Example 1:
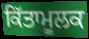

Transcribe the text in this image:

ਕਿੱਤਾਮੂਲਕ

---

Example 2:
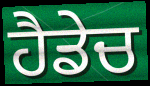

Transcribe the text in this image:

ਹੈਡੇਚ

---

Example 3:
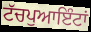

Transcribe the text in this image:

ਟੱਚਪੁਆਇੰਟਾਂ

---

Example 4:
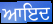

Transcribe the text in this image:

ਆਇਦ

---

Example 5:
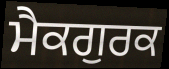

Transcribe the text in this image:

ਮੈਕਗੁਰਕ